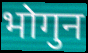
भोगुन